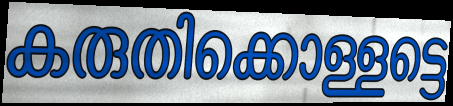
കരുതിക്കൊള്ളട്ടെ